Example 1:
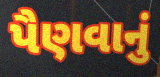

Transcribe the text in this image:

પૈણવાનું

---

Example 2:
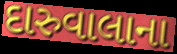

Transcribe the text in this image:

દારુવાલાના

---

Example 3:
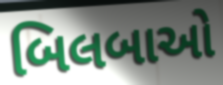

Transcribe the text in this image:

બિલબાઓ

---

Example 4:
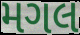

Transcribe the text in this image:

મગલ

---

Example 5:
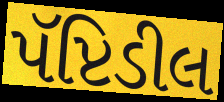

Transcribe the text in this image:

પૅપ્ટિડીલ